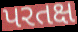
પરતક્ષ